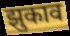
झुकाव